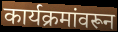
कार्यक्रमांवरून